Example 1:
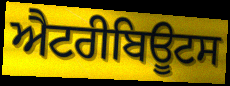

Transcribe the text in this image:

ਐਟਰੀਬਿਊਟਸ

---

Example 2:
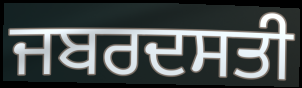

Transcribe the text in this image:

ਜਬਰਦਸਤੀ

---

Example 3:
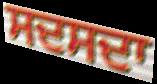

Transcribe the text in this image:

ਸਦਸਦਾ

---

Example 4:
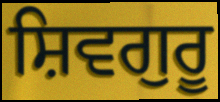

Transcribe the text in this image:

ਸ਼ਿਵਗੁਰੂ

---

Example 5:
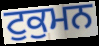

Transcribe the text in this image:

ਟੁਕੁਮਨ